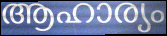
ആഹാര്യം